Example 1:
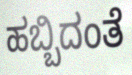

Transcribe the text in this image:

ಹಬ್ಬಿದಂತೆ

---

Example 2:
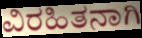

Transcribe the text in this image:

ವಿರಹಿತನಾಗಿ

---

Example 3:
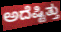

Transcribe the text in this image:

ಅದೆಷ್ಟಿತ್ತು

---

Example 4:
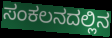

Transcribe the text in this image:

ಸಂಕಲನದಲ್ಲಿನ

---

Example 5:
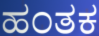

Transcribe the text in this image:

ಹಂತಕ